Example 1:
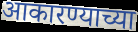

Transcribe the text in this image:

आकारण्याच्या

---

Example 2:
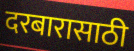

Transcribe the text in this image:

दरबारासाठी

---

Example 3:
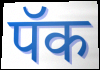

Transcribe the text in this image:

पॅक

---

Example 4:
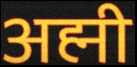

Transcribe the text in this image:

अह्मी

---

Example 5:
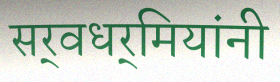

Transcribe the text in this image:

सर्वधर्मियांनी